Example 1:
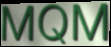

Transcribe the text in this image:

MQM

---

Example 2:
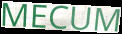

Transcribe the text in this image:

MECUM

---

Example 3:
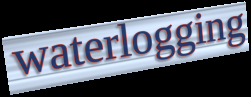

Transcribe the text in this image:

waterlogging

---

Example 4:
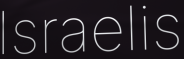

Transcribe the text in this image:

Israelis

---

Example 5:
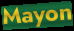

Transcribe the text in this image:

Mayon